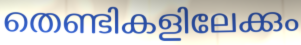
തെണ്ടികളിലേക്കും